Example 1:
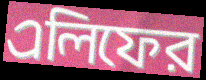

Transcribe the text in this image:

এলিফের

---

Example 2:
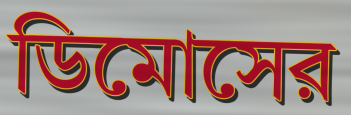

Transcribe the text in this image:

ডিমোসের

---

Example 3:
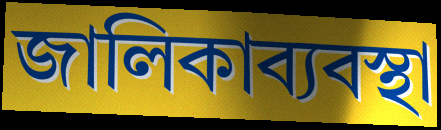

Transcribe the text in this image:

জালিকাব্যবস্থা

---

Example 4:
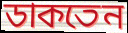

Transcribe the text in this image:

ডাকতেন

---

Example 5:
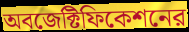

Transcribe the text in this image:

অবজেক্টিফিকেশনের